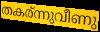
തകര്ന്നുവീണു